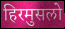
हिरमुसलो